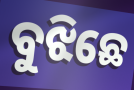
ବୁଝିଛେ